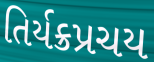
તિર્યક્રપ્રચય